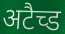
अटैच्ड